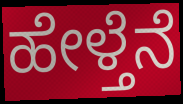
ಹೇಳ್ತೆನೆ